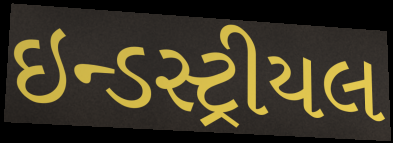
ઇન્ડસ્ટ્રીયલ